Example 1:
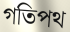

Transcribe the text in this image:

গতিপথ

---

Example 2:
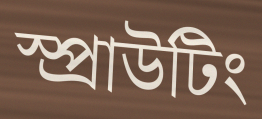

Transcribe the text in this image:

স্প্রাউটিং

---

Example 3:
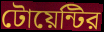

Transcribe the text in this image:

টোয়েন্টির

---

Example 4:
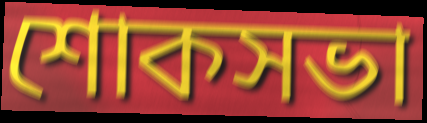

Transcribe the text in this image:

শোকসভা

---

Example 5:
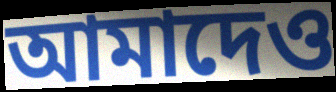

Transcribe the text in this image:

আমাদেও